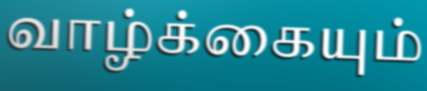
வாழ்க்கையும்